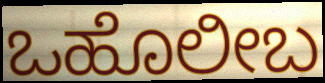
ಒಹೊಲೀಬ